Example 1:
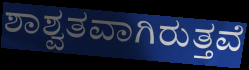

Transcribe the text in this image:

ಶಾಶ್ವತವಾಗಿರುತ್ತವೆ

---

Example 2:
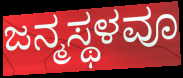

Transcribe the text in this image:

ಜನ್ಮಸ್ಥಳವೂ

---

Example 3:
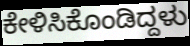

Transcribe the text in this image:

ಕೇಳಿಸಿಕೊಂಡಿದ್ದಳು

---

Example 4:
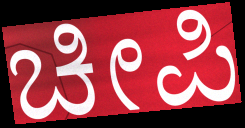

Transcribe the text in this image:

ಚೀಪಿ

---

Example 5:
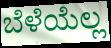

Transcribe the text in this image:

ಬೆಳೆಯೆಲ್ಲ